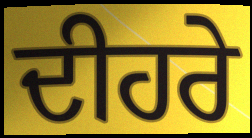
ਦੀਹਰੇ